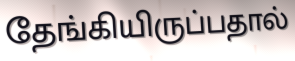
தேங்கியிருப்பதால்